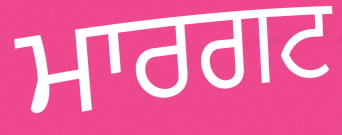
ਮਾਰਗਟ